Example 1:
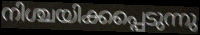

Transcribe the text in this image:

നിശ്ചയിക്കപ്പെടുന്നു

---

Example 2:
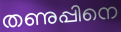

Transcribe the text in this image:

തണുപ്പിനെ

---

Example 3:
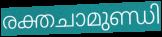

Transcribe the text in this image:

രക്തചാമുണ്ഡി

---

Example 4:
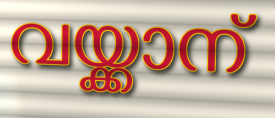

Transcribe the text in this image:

വയ്ക്കാന്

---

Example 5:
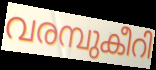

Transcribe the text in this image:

വരമ്പുകീറി